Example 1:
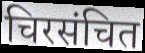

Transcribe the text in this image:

चिरसंचित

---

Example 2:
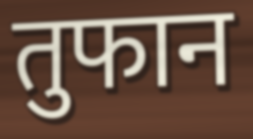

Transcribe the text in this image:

तुफान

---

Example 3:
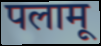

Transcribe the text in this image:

पलामू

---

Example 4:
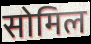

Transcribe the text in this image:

सोमिल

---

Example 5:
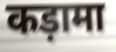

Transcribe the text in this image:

कड़ामा